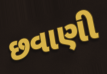
છવાણી